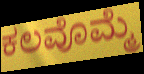
ಕಲವೊಮ್ಮೆ